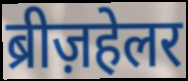
ब्रीज़हेलर